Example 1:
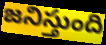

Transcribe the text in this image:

జనిస్తుంది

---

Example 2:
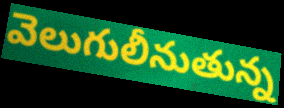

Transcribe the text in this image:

వెలుగులీనుతున్న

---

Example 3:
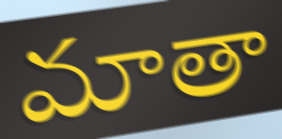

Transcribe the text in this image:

మాతా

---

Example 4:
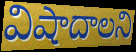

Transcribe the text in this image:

విషాదాలని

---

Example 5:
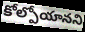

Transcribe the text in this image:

కోల్పోయానని